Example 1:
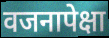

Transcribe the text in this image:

वजनापेक्षा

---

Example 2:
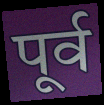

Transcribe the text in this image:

पूर्व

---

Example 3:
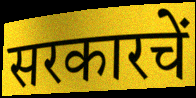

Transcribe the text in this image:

सरकारचें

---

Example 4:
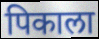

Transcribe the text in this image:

पिकाला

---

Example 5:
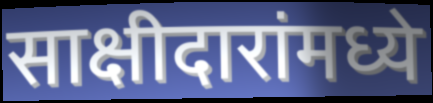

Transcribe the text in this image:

साक्षीदारांमध्ये